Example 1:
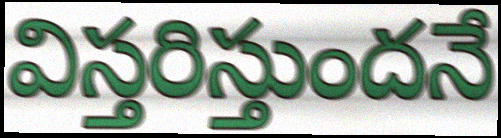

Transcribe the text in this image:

విస్తరిస్తుందనే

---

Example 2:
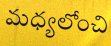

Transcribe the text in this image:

మధ్యలోంచి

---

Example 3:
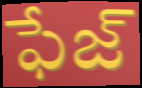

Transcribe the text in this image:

ఫేజ్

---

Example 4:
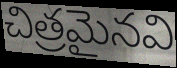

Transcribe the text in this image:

చిత్రమైనవి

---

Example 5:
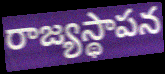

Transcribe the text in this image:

రాజ్యస్థాపన